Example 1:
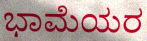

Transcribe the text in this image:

ಭಾಮೆಯರ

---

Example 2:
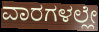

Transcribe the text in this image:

ವಾರಗಳಲ್ಲೇ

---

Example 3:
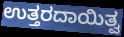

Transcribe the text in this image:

ಉತ್ತರದಾಯಿತ್ವ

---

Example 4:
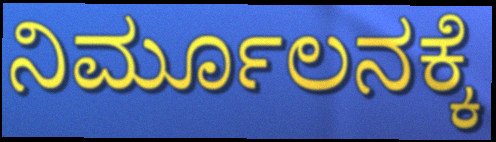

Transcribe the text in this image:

ನಿರ್ಮೂಲನಕ್ಕೆ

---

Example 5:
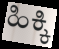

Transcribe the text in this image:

ಹಿಕ್ಕಿ